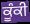
ਕੂੰਕੀ